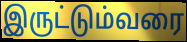
இருட்டும்வரை